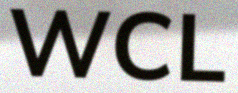
WCL